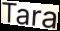
Tara